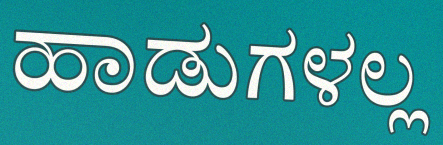
ಹಾಡುಗಳಲ್ಲ